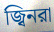
জ্বিনরা